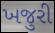
ખજુરી